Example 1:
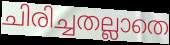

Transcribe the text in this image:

ചിരിച്ചതല്ലാതെ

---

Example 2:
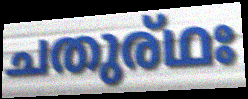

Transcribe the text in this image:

ചതുര്ഥഃ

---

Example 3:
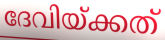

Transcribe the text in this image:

ദേവിയ്ക്കത്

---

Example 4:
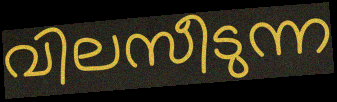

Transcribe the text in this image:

വിലസീടുന്ന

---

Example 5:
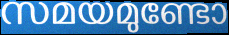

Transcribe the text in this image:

സമയമുണ്ടോ